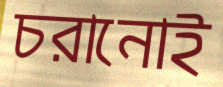
চরানোই